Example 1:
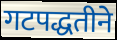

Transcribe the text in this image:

गटपद्धतीने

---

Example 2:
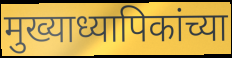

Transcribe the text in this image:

मुख्याध्यापिकांच्या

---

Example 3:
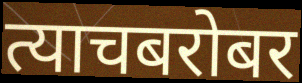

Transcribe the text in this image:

त्याचबरोबर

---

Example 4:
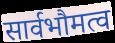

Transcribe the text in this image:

सार्वभौमत्व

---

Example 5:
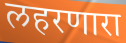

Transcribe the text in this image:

लहरणारा